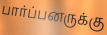
பார்ப்பனருக்கு